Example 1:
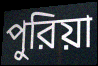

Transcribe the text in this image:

পুরিয়া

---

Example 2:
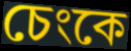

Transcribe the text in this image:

চেংকে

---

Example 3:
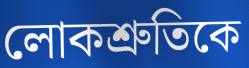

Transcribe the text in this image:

লোকশ্রুতিকে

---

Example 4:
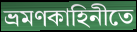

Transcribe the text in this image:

ভ্রমণকাহিনীতে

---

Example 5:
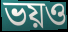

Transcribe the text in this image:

ভয়ও